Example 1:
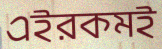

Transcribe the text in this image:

এইরকমই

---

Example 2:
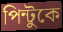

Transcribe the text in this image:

পিন্টুকে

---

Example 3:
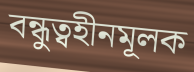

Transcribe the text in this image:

বন্ধুত্বহীনমূলক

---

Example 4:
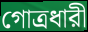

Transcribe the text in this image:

গোত্রধারী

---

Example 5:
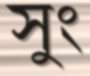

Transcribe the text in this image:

সুং